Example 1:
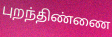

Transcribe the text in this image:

புறந்திண்ணை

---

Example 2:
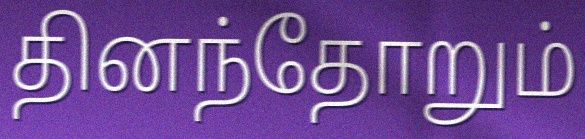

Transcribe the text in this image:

தினந்தோறும்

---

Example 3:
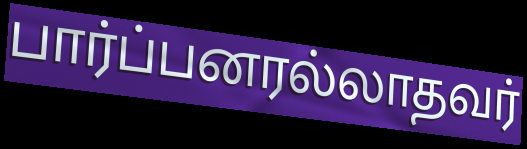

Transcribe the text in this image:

பார்ப்பனரல்லாதவர்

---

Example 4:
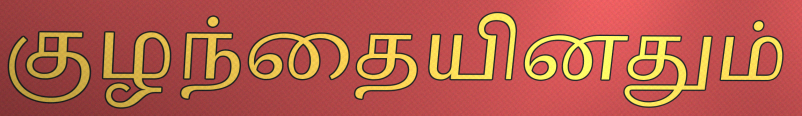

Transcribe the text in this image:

குழந்தையினதும்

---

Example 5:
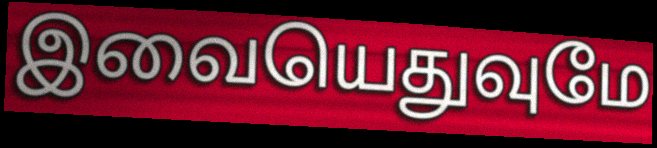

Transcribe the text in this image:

இவையெதுவுமே